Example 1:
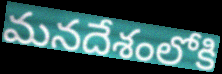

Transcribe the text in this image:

మనదేశంలోకి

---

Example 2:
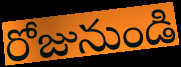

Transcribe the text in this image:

రోజునుండి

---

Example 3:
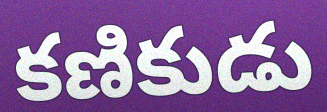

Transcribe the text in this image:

కణికుడు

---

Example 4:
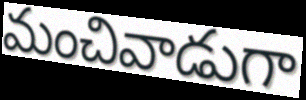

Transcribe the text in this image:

మంచివాడుగా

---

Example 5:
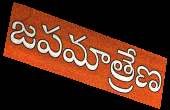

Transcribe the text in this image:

జపమాత్రేణ